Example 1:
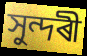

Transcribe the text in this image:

সুন্দৰী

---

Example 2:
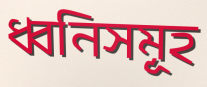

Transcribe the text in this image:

ধ্বনিসমূহ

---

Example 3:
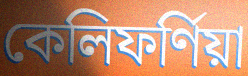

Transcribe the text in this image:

কেলিফৰ্ণিয়া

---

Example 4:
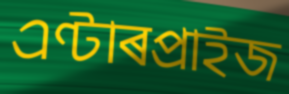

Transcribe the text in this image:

এণ্টাৰপ্ৰাইজ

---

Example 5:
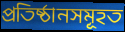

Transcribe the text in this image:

প্ৰতিষ্ঠানসমূহত